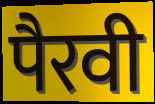
पैरवी